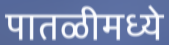
पातळीमध्ये